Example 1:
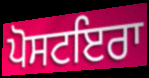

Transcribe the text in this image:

ਪੋਸਟਇਰਾ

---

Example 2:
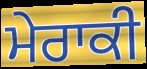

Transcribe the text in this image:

ਮੇਰਾਕੀ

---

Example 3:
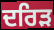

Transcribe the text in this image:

ਦਰਿੜ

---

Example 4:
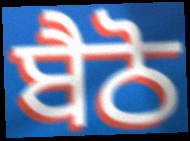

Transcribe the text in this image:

ਬੈਠੋ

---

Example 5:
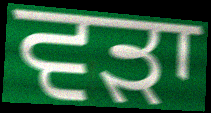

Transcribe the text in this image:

ਵੜਾ